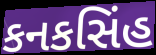
કનકસિંહ